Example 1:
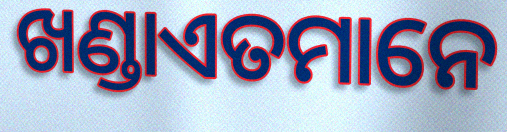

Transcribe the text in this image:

ଖଣ୍ଡାଏତମାନେ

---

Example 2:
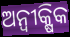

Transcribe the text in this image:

ଅନ୍ୱୀକ୍ଷିକ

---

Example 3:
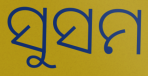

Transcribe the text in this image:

ସୁସମ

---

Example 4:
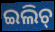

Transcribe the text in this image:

ଇଲିଚ୍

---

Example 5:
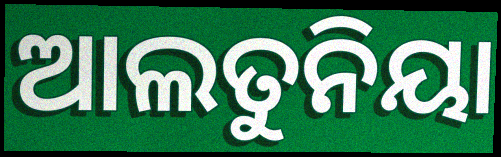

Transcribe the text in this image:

ଆଲତୁନିୟା